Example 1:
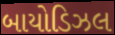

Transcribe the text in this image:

બાયોડિઝલ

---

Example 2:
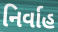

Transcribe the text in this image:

નિર્વાહ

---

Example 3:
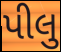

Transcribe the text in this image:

પીલુ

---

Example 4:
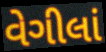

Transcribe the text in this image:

વેગીલાં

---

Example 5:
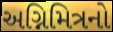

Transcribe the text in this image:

અગ્નિમિત્રનો